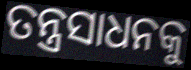
ତନ୍ତ୍ରସାଧନକୁ